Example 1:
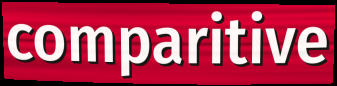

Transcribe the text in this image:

comparitive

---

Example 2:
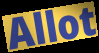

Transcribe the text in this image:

Allot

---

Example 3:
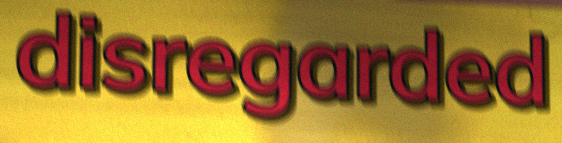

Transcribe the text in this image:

disregarded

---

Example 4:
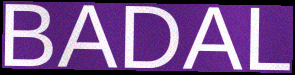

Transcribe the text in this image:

BADAL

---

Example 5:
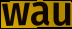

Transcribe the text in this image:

wau